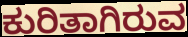
ಕುರಿತಾಗಿರುವ